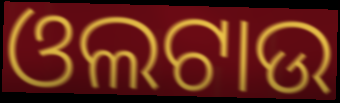
ଓଲଟାଉ